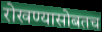
रोखण्यासोबतच